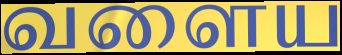
வளைய